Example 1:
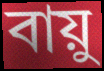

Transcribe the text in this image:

বায়ু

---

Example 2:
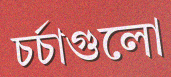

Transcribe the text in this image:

চর্চাগুলো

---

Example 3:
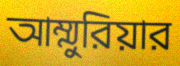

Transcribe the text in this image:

আম্মুরিয়ার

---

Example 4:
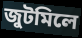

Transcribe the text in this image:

জুটমিলে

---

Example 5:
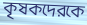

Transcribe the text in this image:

কৃষকদেরকে